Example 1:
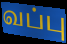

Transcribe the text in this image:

வப்பு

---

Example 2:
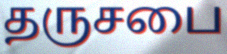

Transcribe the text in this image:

தருசபை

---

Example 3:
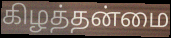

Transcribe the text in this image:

கிழத்தன்மை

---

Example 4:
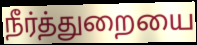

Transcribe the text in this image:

நீர்த்துறையை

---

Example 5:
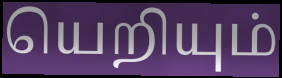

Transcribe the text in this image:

யெறியும்